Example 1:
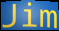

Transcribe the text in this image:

Jim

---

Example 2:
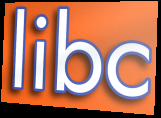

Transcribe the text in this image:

libc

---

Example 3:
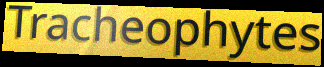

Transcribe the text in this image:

Tracheophytes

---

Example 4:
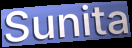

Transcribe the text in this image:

Sunita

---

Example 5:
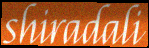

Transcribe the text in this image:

shiradali